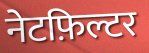
नेटफ़िल्टर